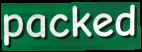
packed